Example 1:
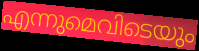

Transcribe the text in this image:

എന്നുമെവിടെയും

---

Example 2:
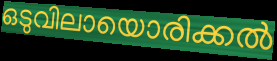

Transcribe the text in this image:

ഒടുവിലായൊരിക്കൽ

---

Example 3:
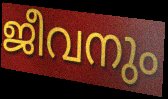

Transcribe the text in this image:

ജീവനും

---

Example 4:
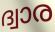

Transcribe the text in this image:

ദ്വാര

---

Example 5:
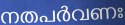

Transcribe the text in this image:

നതപർവണഃ